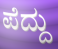
ಪೆದ್ದು